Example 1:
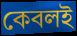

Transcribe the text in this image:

কেবলই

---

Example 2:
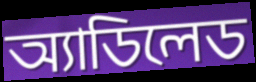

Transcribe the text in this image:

অ্যাডিলেড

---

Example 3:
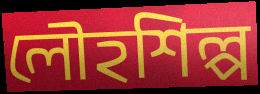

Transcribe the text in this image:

লৌহশিল্প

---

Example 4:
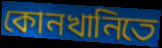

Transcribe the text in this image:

কোনখানিতে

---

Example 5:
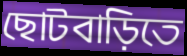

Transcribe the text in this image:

ছোটবাড়িতে